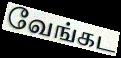
வேங்கட